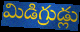
మిడిగ్రుడ్లు